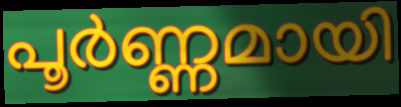
പൂർണ്ണമായി